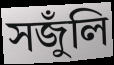
সজুঁলি